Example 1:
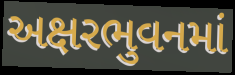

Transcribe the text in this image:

અક્ષરભુવનમાં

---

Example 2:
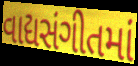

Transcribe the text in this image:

વાદ્યસંગીતમાં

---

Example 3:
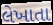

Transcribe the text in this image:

લેખાતા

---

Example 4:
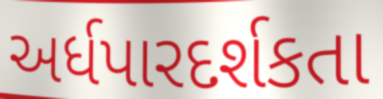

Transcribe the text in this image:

અર્ધપારદર્શકતા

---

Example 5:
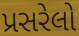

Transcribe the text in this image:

પ્રસરેલો